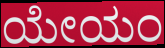
ಯೇಯಂ